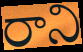
రాని